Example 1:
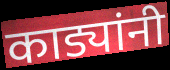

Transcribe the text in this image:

काड्यांनी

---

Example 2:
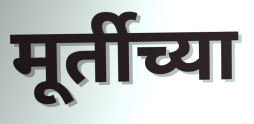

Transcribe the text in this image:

मूर्तीच्या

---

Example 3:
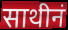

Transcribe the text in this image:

साथीनं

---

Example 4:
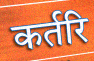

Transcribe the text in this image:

कर्तरि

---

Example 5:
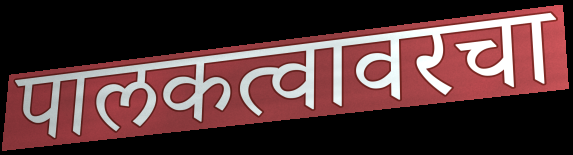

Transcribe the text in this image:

पालकत्वावरचा